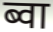
ब्वा